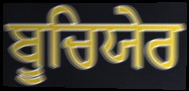
ਬੂਚਿਯੇਰ